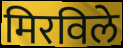
मिरविले